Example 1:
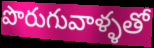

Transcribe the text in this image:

పొరుగువాళ్ళతో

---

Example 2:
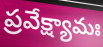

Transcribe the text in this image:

ప్రవేక్ష్యామః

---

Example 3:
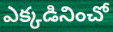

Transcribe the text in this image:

ఎక్కడినించో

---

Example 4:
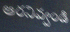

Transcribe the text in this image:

ఆరనివ్వండి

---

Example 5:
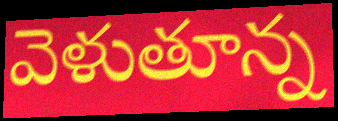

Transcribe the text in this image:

వెళుతూన్న